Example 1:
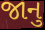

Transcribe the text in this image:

જાનુ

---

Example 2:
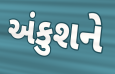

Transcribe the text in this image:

અંકુશને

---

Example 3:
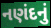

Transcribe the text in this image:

નણંદનું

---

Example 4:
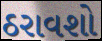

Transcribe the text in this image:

ઠરાવશો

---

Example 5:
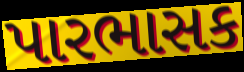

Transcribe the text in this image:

પારભાસક